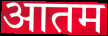
आतम